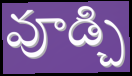
వూడ్చి